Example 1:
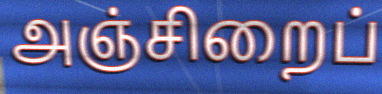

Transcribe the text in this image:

அஞ்சிறைப்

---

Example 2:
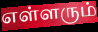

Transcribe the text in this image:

எள்ளரும்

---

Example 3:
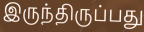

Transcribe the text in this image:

இருந்திருப்பது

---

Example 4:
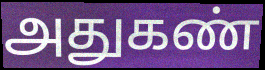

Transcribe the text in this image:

அதுகண்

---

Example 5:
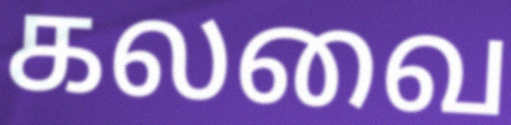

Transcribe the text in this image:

கலவை